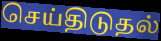
செய்திடுதல்